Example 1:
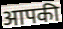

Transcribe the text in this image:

आपकी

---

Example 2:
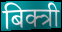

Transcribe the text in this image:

बिक्त्री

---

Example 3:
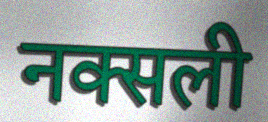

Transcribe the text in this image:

नक्सली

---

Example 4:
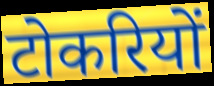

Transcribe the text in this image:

टोकरियों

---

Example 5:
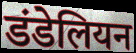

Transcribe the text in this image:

डंडेलियन